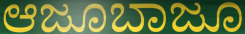
ಆಜೂಬಾಜೂ